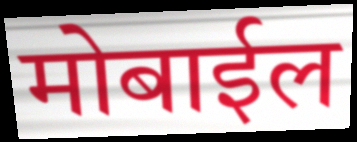
मोबाईल